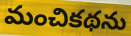
మంచికథను